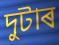
দুটাৰ